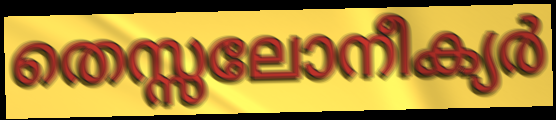
തെസ്സലോനീക്യർ